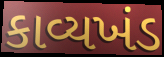
કાવ્યખંડ